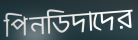
পিনডিদাদের